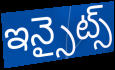
ఇన్సైట్స్